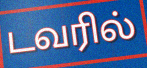
டவரில்